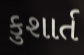
કુશાર્ત